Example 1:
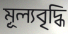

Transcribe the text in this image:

মূল্যবৃদ্ধি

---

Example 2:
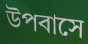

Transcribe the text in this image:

উপবাসে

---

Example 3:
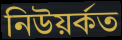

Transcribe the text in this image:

নিউয়ৰ্কত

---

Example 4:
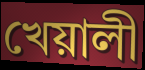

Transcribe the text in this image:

খেয়ালী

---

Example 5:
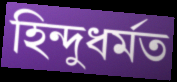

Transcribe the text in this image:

হিন্দুধৰ্মত